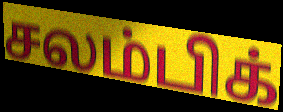
சலம்பிக்